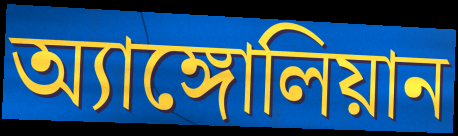
অ্যাঙ্গোলিয়ান